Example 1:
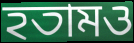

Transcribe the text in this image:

হতামও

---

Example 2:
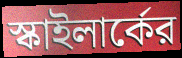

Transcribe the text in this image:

স্কাইলার্কের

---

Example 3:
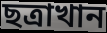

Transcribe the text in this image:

ছত্রাখান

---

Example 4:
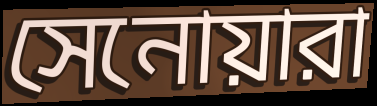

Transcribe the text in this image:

সেনোয়ারা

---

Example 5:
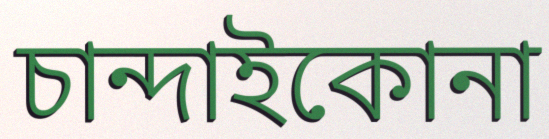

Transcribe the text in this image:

চান্দাইকোনা